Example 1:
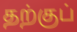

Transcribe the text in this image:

தற்குப்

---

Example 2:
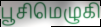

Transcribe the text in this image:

பூசிமெழுகி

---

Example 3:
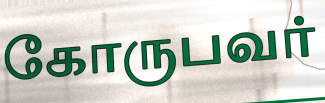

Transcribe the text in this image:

கோருபவர்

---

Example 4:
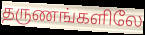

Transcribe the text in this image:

தருணங்களிலே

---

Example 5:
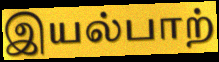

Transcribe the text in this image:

இயல்பாற்